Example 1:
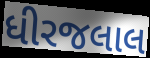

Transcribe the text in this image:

ધીરજલાલ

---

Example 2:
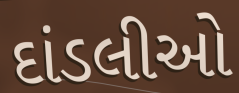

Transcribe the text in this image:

દાંડલીઓ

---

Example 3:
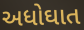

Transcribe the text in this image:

અધોઘાત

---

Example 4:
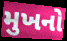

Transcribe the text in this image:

મુખનો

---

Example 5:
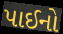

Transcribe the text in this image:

પાઈનો